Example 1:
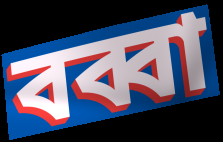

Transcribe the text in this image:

বব্বা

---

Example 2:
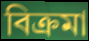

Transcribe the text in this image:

বিক্রমা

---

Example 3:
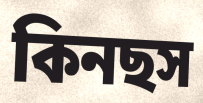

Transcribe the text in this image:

কিনছস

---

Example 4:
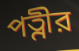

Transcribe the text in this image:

পত্নীর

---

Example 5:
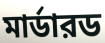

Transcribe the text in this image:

মার্ডারড